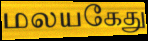
மலயகேது